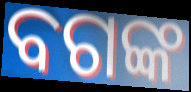
ବଗଙ୍କ